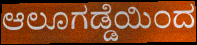
ಆಲೂಗಡ್ಡೆಯಿಂದ